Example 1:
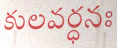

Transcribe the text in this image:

కులవర్ధనః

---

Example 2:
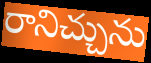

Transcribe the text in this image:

రానిచ్చును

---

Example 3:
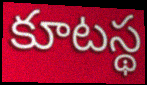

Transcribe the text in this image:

కూటస్థ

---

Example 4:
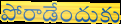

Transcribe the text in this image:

పోరాడేందుకు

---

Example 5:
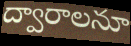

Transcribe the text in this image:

ద్వారాలనూ